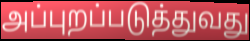
அப்புறப்படுத்துவது